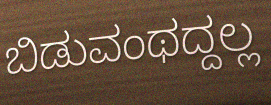
ಬಿಡುವಂಥದ್ದಲ್ಲ